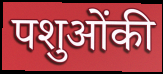
पशुओंकी